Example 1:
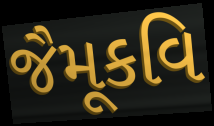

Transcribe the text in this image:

જૈમૂકવિ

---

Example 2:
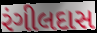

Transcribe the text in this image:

રંગીલદાસ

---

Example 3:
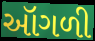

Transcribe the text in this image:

ઑગળી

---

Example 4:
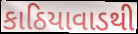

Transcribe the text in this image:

કાઠિયાવાડથી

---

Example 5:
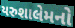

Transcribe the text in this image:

યરુશાલેમનો